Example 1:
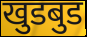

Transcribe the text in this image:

खुडबुड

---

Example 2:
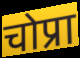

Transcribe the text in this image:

चोप्रा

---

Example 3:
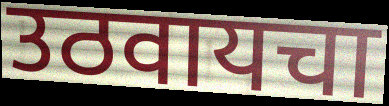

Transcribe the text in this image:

उठवायचा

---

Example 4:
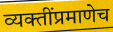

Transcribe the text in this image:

व्यक्तींप्रमाणेच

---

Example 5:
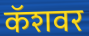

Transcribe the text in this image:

कॅशवर